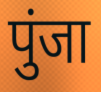
पुंजा